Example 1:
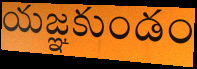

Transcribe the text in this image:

యజ్ఞకుండం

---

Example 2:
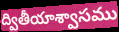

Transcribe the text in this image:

ద్వితీయాశ్వాసము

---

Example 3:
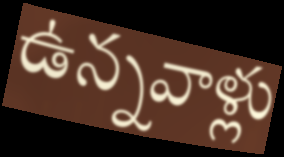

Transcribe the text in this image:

ఉన్నవాళ్లు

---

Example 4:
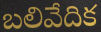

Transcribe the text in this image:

బలివేదిక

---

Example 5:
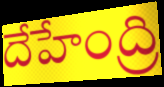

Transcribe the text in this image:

దేహేంద్రి